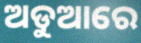
ଅଡୁଆରେ